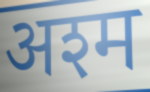
अश्म